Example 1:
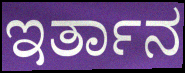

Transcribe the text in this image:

ಇರ್ತಾನ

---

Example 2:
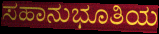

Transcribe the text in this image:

ಸಹಾನುಭೂತಿಯ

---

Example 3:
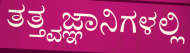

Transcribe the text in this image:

ತತ್ತ್ವಜ್ಞಾನಿಗಳಲ್ಲಿ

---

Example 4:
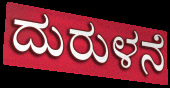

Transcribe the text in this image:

ದುರುಳನೆ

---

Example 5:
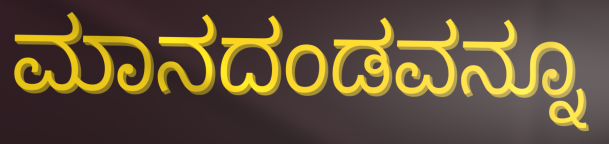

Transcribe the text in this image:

ಮಾನದಂಡವನ್ನೂ